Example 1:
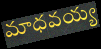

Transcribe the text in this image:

మాధవయ్య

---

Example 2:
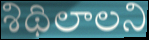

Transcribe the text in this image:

శిథిలాలని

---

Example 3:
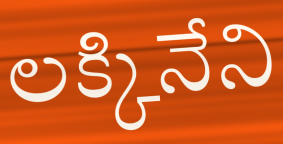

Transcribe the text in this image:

లక్కినేని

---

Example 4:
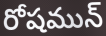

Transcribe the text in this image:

రోషమున్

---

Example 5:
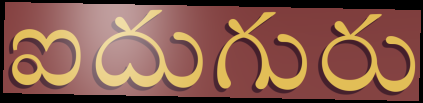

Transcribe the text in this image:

ఐదుగురు